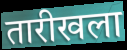
तारीखला